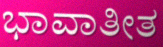
ಭಾವಾತೀತ